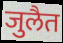
जुलैत